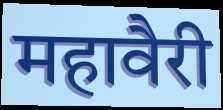
महावैरी